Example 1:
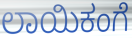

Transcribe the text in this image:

ಲಾಯಿಕಂಗೆ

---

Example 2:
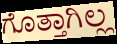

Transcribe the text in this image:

ಗೊತ್ತಾಗಿಲ್ಲ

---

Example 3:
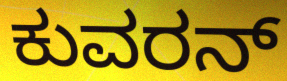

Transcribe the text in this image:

ಕುವರನ್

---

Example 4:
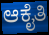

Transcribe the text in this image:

ಆಕೈತಿ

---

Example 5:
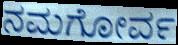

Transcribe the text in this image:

ನಮಗೋರ್ವ